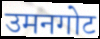
उमनगोट